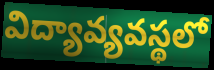
విద్యావ్యవస్థలో